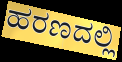
ಹರಣದಲ್ಲಿ